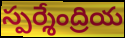
స్పర్శేంద్రియ